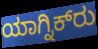
ಯಾಗ್ನಿಕ್‍ರು